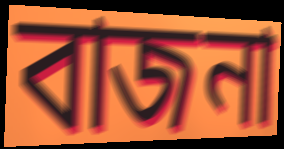
বাজনা